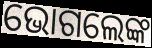
ଭୋଗଲେଙ୍କ